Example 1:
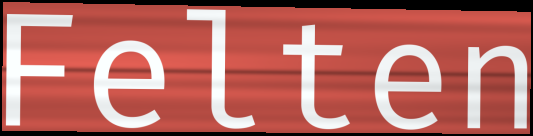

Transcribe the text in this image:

Felten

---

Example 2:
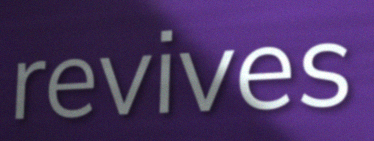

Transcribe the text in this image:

revives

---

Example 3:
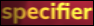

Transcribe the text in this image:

specifier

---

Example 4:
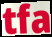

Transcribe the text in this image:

tfa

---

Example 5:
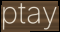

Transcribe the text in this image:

ptay